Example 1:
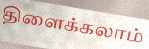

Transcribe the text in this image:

திளைக்கலாம்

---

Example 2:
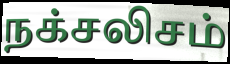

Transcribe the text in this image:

நக்சலிசம்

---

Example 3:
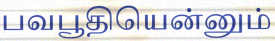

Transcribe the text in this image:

பவபூதியென்னும்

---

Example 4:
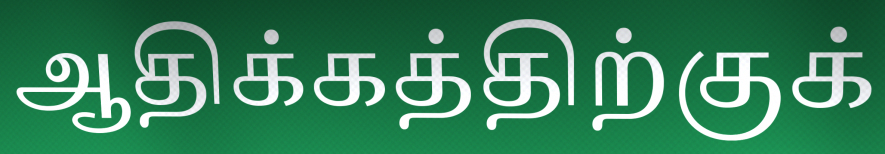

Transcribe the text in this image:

ஆதிக்கத்திற்குக்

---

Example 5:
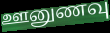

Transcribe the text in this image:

ஊனுணவு